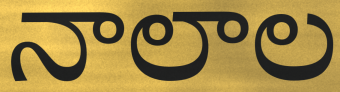
నాలాల